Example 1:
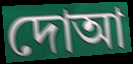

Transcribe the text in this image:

দোআ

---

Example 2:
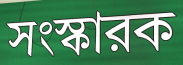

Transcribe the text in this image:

সংস্কারক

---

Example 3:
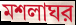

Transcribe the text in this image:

মশলাঘর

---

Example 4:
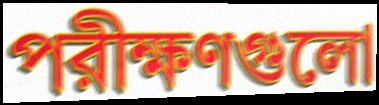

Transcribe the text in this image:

পরীক্ষণগুলো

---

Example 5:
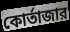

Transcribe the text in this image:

কোর্তাজার